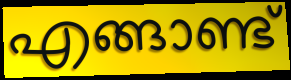
എങ്ങാണ്ട്